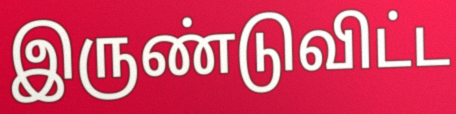
இருண்டுவிட்ட